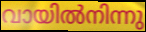
വായിൽനിന്നു